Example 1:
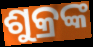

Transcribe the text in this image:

ଶୁକ୍ରଙ୍କ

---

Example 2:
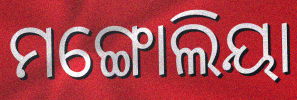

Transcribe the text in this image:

ମଙ୍ଗୋଲିୟା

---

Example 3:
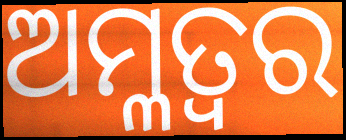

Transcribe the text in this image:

ଅମ୍ଳତ୍ଵର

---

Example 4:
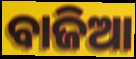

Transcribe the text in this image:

ବାଜିଆ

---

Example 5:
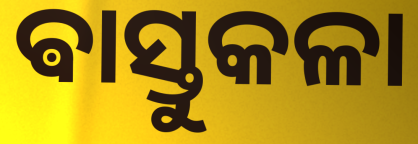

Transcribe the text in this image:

ଵାସ୍ତୁକଳା